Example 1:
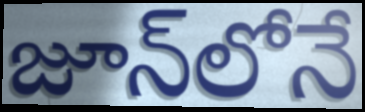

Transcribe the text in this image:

జూన్‌లోనే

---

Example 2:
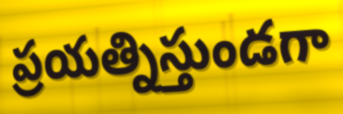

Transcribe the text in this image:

ప్రయత్నిస్తుండగా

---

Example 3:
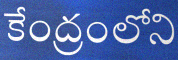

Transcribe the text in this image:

కేంద్రంలోని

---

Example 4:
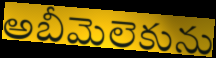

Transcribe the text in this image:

అబీమెలెకును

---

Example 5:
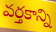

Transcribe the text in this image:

వర్తకాన్ని